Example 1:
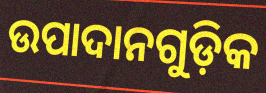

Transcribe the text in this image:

ଉପାଦାନଗୁଡ଼ିକ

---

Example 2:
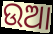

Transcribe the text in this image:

ଉଆ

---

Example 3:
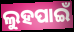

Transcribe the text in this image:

ଲୁହପାଇଁ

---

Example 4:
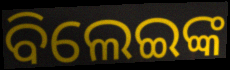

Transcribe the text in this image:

ବିଲେଇଙ୍କ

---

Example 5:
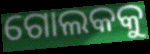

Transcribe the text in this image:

ଗୋଲକକୁ